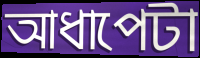
আধাপেটা